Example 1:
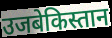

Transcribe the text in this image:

उजबेकिस्तान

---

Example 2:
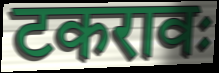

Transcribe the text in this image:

टकरावः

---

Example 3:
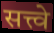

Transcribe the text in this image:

सत्त्वे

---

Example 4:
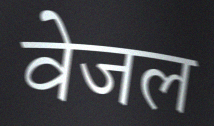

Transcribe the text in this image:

वेजल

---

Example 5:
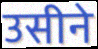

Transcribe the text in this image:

उसीने